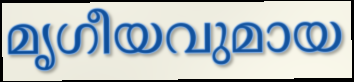
മൃഗീയവുമായ